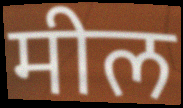
मील